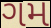
ગમ